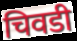
चिवडी